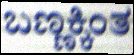
ಬಣ್ಣಕ್ಕಿಂತ